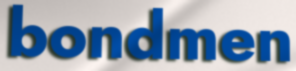
bondmen